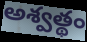
అశ్వత్థం